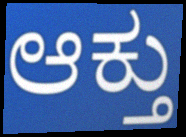
ಆಕ್ತು